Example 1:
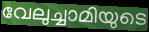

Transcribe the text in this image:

വേലുച്ചാമിയുടെ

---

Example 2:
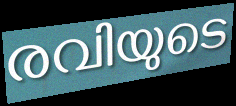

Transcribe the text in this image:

രവിയുടെ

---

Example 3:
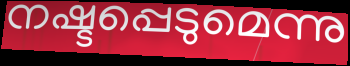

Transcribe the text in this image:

നഷ്ടപ്പെടുമെന്നു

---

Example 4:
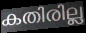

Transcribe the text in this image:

കതിരില്ല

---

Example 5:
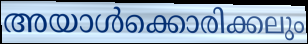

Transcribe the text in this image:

അയാൾക്കൊരിക്കലും